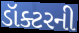
ડૉક્ટરની